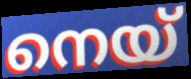
നെയ്